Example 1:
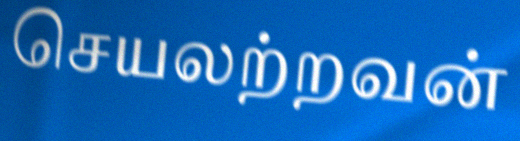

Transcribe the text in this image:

செயலற்றவன்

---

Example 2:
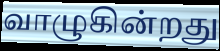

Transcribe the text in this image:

வாழுகின்றது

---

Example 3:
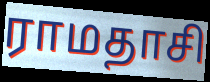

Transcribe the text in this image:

ராமதாசி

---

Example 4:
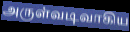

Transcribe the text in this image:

அருள்வடிவாகிய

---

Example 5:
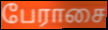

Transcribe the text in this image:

பேராசை